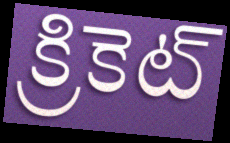
క్రికెట్